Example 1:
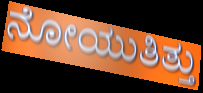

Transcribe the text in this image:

ನೋಯುತಿತ್ತು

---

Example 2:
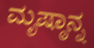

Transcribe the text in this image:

ಮೃಷ್ಠಾನ್ನ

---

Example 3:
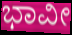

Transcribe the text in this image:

ಭಾವೀ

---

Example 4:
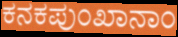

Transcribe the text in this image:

ಕನಕಪುಂಖಾನಾಂ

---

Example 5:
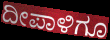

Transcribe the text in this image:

ದೀಪಾಳಿಗೂ